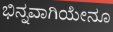
ಭಿನ್ನವಾಗಿಯೇನೂ